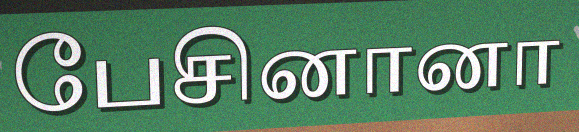
பேசினானா